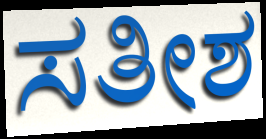
ಸತೀಶ